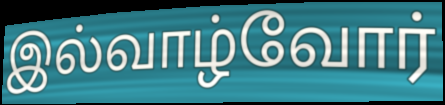
இல்வாழ்வோர்